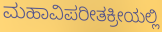
ಮಹಾವಿಪರೀತಕ್ರೀಯಲ್ಲಿ